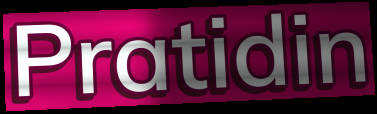
Pratidin